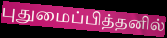
புதுமைப்பித்தனில்